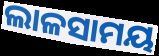
ଲାଳସାମୟ